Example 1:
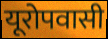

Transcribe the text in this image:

यूरोपवासी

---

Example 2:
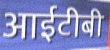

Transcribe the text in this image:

आईटीबी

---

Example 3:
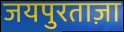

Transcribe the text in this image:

जयपुरताज़ा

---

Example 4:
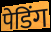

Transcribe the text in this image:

पेडिंग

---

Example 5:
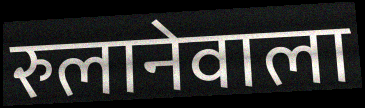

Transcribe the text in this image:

रुलानेवाला